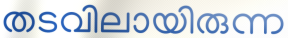
തടവിലായിരുന്ന